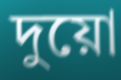
দুয়ো